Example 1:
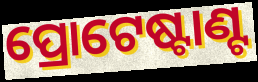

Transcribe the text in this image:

ପ୍ରୋଟେଷ୍ଟାଣ୍ଟ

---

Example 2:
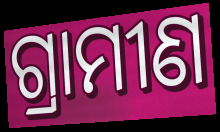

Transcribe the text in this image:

ଗ୍ରାମୀଣ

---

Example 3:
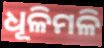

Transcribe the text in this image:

ଧୂଳିମଳି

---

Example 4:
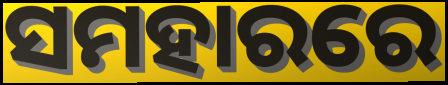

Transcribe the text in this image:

ସମହାରରେ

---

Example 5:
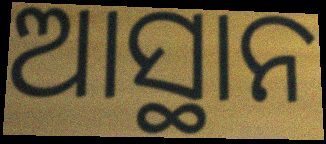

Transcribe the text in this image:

ଆସ୍ଥାନ